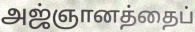
அஜ்ஞானத்தைப்